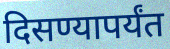
दिसण्यापर्यंत